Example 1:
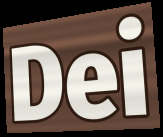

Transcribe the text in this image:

Dei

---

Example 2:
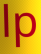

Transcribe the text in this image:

lp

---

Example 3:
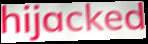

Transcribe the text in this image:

hijacked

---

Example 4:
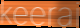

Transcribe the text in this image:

keerai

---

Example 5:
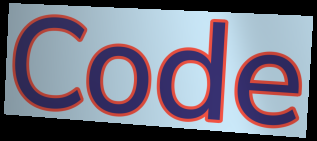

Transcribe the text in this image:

Code